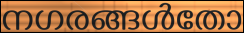
നഗരങ്ങൾതോ